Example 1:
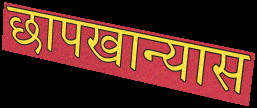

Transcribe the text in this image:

छापखान्यास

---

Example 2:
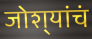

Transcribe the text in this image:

जोश्यांचं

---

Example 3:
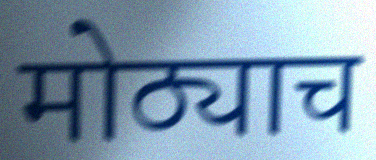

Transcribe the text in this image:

मोठ्याच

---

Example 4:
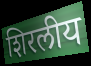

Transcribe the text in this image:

शिरलीय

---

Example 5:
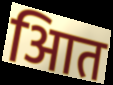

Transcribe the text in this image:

आित